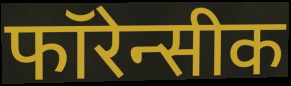
फॉरेन्सीक